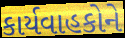
કાર્યવાહકોને